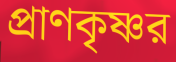
প্রাণকৃষ্ণর